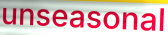
unseasonal